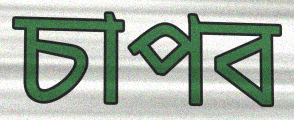
চাপব